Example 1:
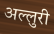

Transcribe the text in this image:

अल्लुरी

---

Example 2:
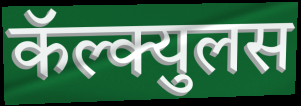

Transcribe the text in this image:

कॅल्क्युलस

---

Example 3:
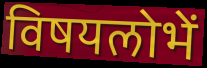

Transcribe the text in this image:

विषयलोभें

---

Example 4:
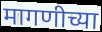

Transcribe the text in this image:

मागणीच्या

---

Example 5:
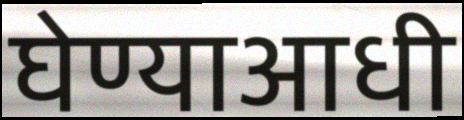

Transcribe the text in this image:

घेण्याआधी